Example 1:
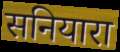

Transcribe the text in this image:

सनियारा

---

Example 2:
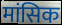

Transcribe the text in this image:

मांसिक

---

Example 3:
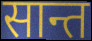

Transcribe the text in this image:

सान्त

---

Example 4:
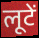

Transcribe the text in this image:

लूटें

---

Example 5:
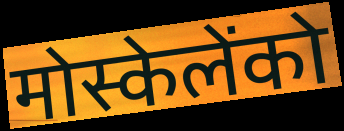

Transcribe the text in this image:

मोस्केलेंको